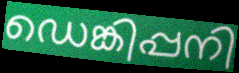
ഡെങ്കിപ്പനി